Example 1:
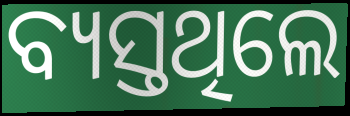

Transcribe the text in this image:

ବ୍ୟସ୍ତଥିଲେ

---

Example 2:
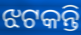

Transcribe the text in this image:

ଝଟକନ୍ତି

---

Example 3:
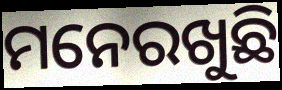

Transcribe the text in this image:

ମନେରଖୁଛି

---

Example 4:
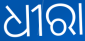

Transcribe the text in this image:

ଧୀରା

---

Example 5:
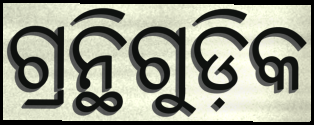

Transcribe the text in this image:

ଗ୍ରନ୍ଥିଗୁଡ଼ିକ